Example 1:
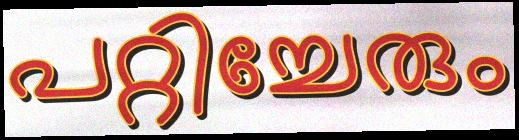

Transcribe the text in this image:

പറ്റിച്ചേരും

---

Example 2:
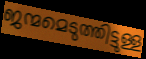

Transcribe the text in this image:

ജന്മമെടുത്തിട്ടുള്ള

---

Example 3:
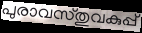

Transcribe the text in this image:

പുരാവസ്തുവകുപ്പ്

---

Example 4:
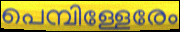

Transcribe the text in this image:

പെമ്പിള്ളേരേം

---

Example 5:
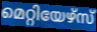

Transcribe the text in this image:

മെറ്റിയേഴ്സ്